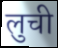
लुची